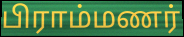
பிராம்மணர்